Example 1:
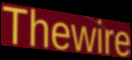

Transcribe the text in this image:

Thewire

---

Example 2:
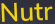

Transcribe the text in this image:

Nutr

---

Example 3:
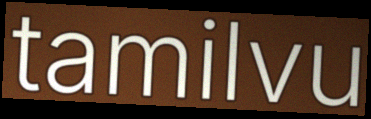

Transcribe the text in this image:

tamilvu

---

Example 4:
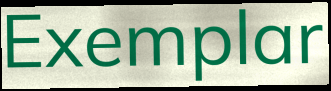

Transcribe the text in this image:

Exemplar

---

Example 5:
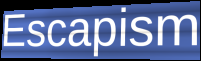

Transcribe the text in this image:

Escapism